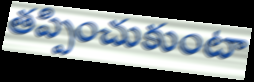
తప్పించుకుంటా